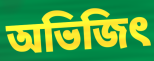
অভিজিৎ